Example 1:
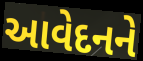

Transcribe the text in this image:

આવેદનને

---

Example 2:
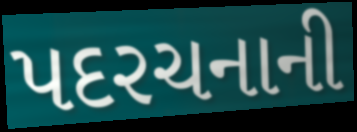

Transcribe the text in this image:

પદરચનાની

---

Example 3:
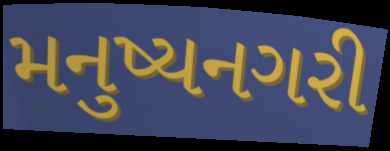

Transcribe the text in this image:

મનુષ્યનગરી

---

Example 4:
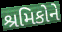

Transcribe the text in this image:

શ્રમિકોને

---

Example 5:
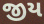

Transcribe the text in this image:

જીય